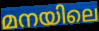
മനയിലെ